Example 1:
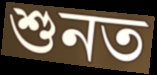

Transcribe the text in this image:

শুনত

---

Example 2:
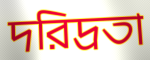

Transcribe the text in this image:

দরিদ্রতা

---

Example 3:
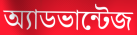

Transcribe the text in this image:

অ্যাডভান্টেজ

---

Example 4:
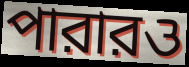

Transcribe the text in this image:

পারারও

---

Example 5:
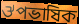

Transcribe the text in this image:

ঔপভাষিক